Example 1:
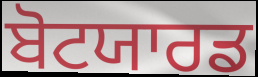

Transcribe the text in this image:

ਬੋਟਯਾਰਡ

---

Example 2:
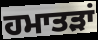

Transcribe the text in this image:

ਹਮਾਤੜਾਂ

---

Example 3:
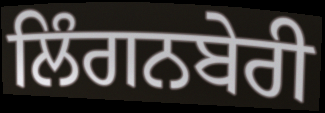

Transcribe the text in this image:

ਲਿੰਗਨਬੇਰੀ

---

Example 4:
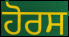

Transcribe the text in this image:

ਹੋਰਸ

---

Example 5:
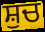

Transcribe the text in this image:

ਸ਼ੁਚ